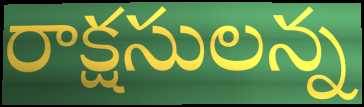
రాక్షసులన్న